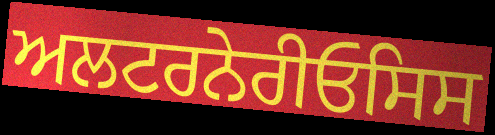
ਅਲਟਰਨੇਰੀਓਸਿਸ